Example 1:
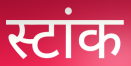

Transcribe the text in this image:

स्टांक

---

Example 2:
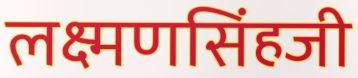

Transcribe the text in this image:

लक्ष्मणसिंहजी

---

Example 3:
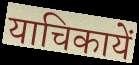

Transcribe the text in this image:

याचिकायें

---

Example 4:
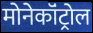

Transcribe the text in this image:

मोनेकॉंट्रोल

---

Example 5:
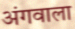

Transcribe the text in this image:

अंगवाला